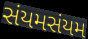
સંયમસંયમ